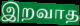
இறவாத